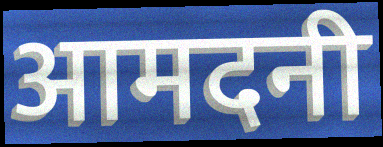
आमदनी